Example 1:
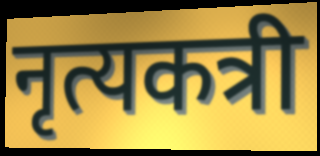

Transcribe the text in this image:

नृत्यकत्री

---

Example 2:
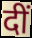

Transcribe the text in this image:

दीं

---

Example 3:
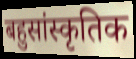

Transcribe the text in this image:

बहुसांस्कृतिक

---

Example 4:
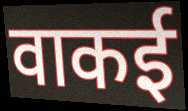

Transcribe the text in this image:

वाकई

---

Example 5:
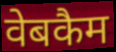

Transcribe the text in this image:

वेबकैम